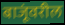
बाजूंवरील